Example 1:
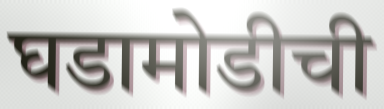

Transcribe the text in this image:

घडामोडीची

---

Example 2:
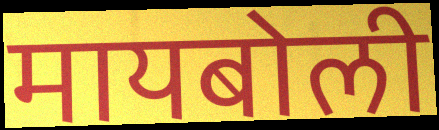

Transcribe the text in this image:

मायबोली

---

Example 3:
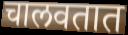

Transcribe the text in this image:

चालवतात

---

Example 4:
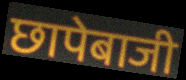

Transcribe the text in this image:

छापेबाजी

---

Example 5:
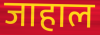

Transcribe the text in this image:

जाहाल